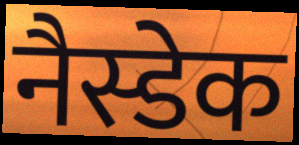
नैस्डेक